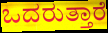
ಒದರುತ್ತಾರೆ